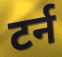
टर्न